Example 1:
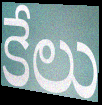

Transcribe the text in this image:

కేలు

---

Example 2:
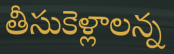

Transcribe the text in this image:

తీసుకెళ్లాలన్న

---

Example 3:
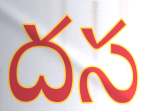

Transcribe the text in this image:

దస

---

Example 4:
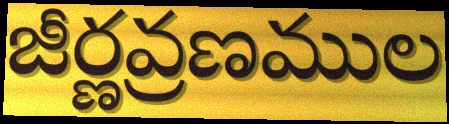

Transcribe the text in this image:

జీర్ణవ్రణముల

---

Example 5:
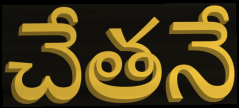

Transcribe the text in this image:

చేతనే